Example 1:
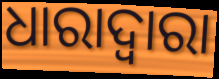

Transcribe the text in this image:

ଧାରାଦ୍ୱାରା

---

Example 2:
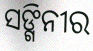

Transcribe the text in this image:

ସଙ୍ଗିନୀର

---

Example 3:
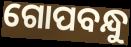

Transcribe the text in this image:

ଗୋପବନ୍ଧୁ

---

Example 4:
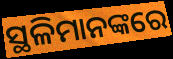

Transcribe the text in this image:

ସ୍ଥଳିମାନଙ୍କରେ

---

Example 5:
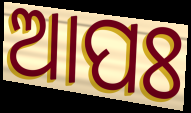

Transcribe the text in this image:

ଆପଃ